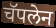
चॅपलेन